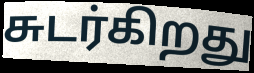
சுடர்கிறது